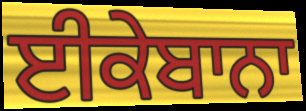
ਈਕੇਬਾਨਾ